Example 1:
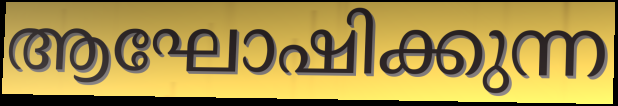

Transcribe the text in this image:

ആഘോഷിക്കുന്ന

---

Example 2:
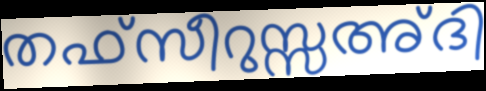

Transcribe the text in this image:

തഫ്സീറുസ്സഅ്ദി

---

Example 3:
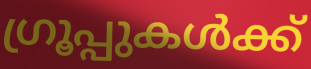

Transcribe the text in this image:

ഗ്രൂപ്പുകൾക്ക്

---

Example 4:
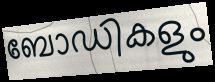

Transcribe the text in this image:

ബോഡികളും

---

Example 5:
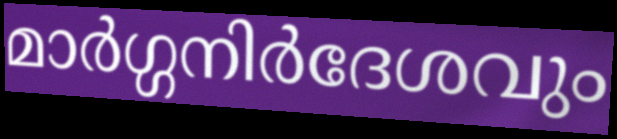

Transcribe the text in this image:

മാർഗ്ഗനിർദേശവും